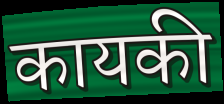
कायकी